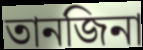
তানজিনা